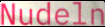
Nudeln